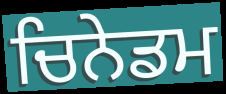
ਚਿਨੇਡਮ